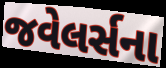
જવેલર્સના